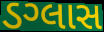
ડગ્લાસ